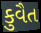
કુવૈત